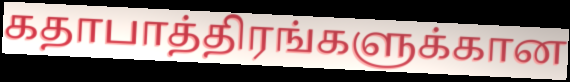
கதாபாத்திரங்களுக்கான